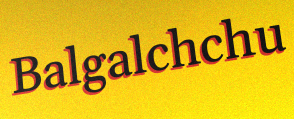
Balgalchchu